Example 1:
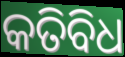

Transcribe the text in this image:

କତିବିଧ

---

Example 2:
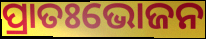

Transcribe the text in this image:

ପ୍ରାତଃଭୋଜନ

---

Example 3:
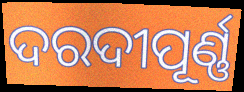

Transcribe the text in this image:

ଦରଦୀପୂର୍ଣ୍ଣ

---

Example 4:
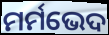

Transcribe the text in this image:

ମର୍ମଭେଦ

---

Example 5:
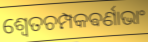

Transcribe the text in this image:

ଶ୍ଵେତଚମ୍ପକଵର୍ଣାଭାଂ